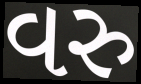
વરુ